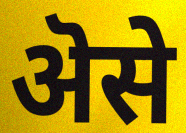
ऄसे